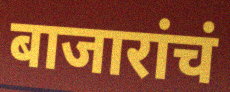
बाजारांचं